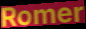
Romer